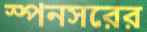
স্পনসরের